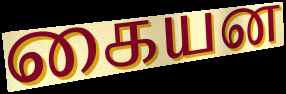
கையன